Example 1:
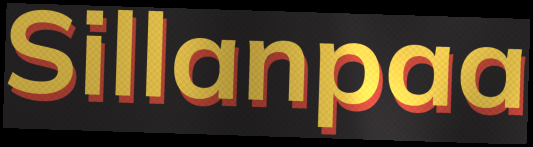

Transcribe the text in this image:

Sillanpaa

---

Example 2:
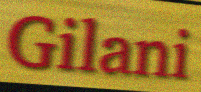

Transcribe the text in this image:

Gilani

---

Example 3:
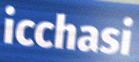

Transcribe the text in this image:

icchasi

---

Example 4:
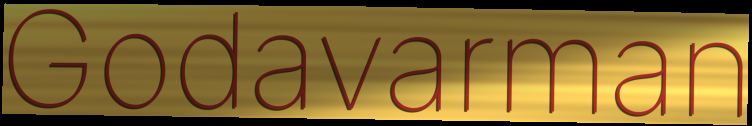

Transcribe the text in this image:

Godavarman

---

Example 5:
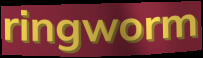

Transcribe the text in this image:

ringworm